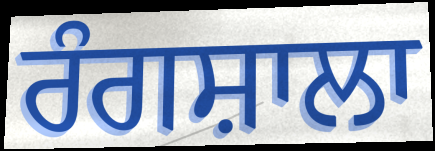
ਰੰਗਸ਼ਾਲਾ